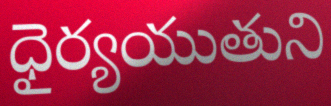
ధైర్యయుతుని